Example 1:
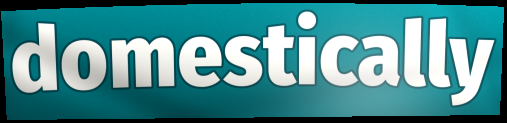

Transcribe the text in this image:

domestically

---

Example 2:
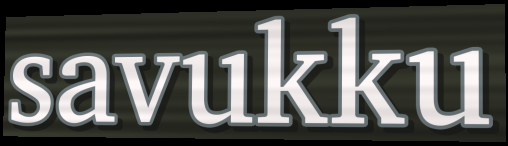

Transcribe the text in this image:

savukku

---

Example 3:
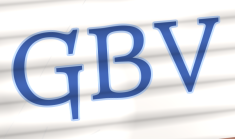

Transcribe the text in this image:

GBV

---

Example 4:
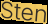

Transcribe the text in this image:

Sten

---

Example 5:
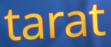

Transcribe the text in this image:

tarat